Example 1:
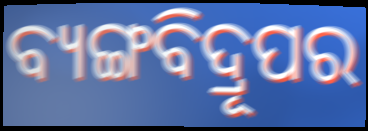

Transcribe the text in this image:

ବ୍ୟଙ୍ଗବିଦ୍ରୂପର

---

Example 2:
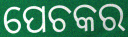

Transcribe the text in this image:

ପେଚକର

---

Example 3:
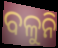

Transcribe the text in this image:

ବଳୁନି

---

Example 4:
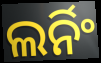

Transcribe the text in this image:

ଲର୍ନିଂ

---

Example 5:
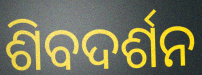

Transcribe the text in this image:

ଶିବଦର୍ଶନ